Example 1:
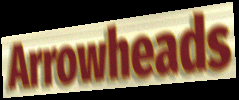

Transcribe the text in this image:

Arrowheads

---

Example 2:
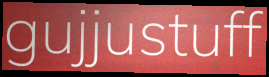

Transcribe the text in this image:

gujjustuff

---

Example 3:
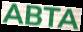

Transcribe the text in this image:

ABTA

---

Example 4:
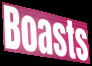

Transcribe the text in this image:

Boasts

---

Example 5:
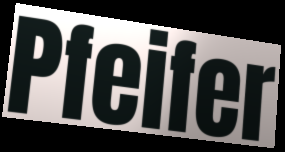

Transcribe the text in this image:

Pfeifer